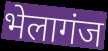
भेलागंज